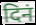
दिनं